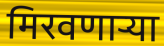
मिरवणाऱ्या